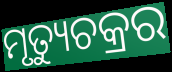
ମୃତ୍ୟୁଚକ୍ରର